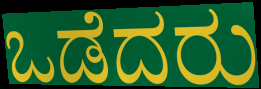
ಒಡೆದರು